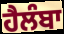
ਹੈਲੰਬਾ